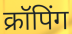
क्रॉपिंग